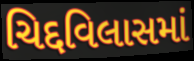
ચિદ્દવિલાસમાં